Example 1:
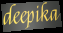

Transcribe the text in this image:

deepika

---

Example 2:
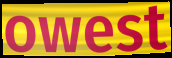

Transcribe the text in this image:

owest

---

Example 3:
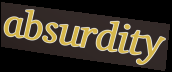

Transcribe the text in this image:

absurdity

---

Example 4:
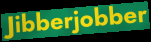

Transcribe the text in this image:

Jibberjobber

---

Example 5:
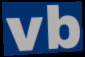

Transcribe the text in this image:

vb